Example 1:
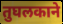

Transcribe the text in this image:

तुघलकाने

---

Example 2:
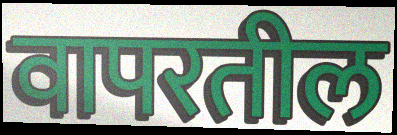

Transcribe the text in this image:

वापरतील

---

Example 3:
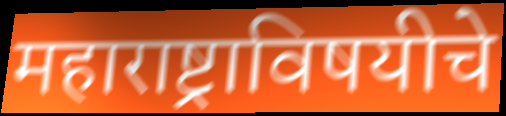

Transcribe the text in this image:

महाराष्ट्राविषयीचे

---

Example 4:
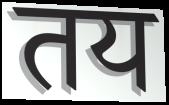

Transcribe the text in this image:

तय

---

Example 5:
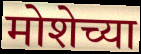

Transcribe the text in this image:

मोशेच्या